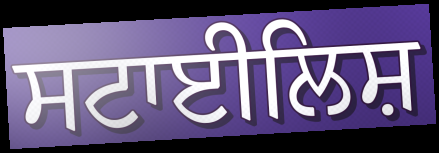
ਸਟਾਈਲਿਸ਼